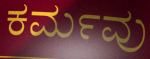
ಕರ್ಮವು